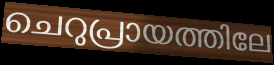
ചെറുപ്രായത്തിലേ